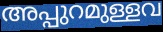
അപ്പുറമുള്ളവ